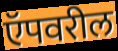
ऍपवरील